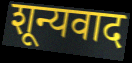
शून्यवाद